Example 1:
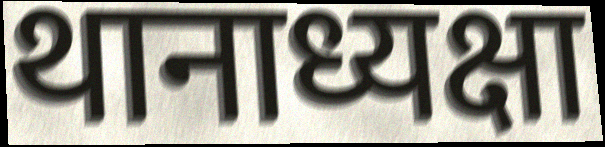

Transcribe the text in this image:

थानाध्यक्षा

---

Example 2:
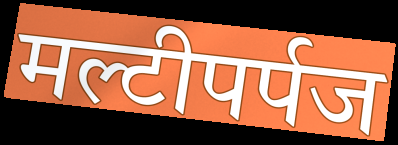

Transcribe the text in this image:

मल्टीपर्पज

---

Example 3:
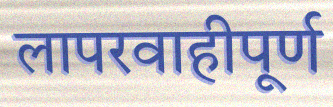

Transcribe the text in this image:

लापरवाहीपूर्ण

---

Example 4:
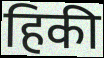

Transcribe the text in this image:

हिकी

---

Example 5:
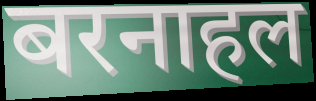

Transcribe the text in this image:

बरनाहल